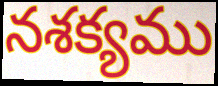
నశక్యము